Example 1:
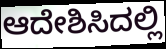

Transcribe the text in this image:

ಆದೇಶಿಸಿದಲ್ಲಿ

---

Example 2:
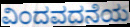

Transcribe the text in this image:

ವಿಂದವದನೆಯ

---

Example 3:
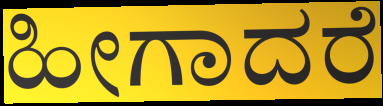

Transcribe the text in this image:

ಹೀಗಾದರೆ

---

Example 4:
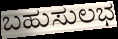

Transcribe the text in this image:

ಬಹುಸುಲಭ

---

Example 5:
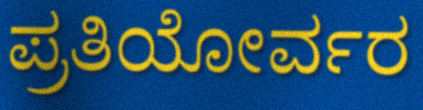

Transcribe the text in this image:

ಪ್ರತಿಯೋರ್ವರ